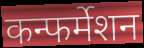
कन्फर्मेशन